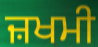
ਜ਼ਖਮੀ